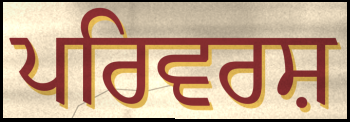
ਪਰਿਵਰਸ਼